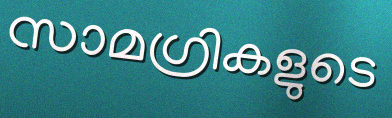
സാമഗ്രികളുടെ